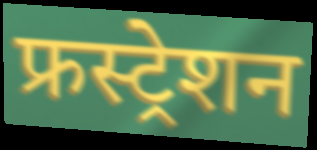
फ्रस्‍ट्रेशन